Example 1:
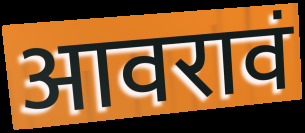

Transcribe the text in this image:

आवरावं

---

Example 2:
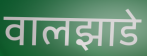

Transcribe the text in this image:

वालझाडे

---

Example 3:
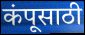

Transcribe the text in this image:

कंपूसाठी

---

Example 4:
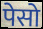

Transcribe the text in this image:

पेसो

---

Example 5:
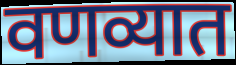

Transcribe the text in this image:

वणव्यात